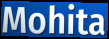
Mohita